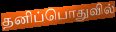
தனிப்பொதுவில்